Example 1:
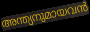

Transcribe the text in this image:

അന്ത്യനുമായവൻ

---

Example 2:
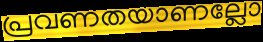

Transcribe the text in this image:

പ്രവണതയാണല്ലോ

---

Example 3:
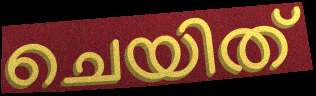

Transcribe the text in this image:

ചെയിത്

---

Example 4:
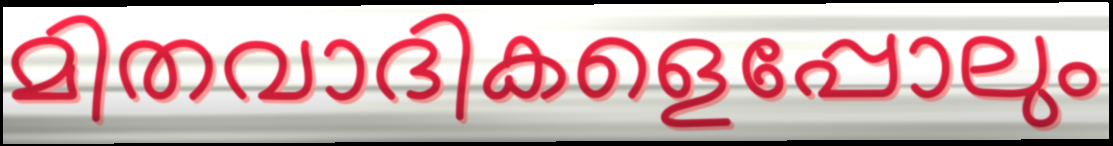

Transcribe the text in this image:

മിതവാദികളെപ്പോലും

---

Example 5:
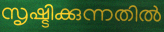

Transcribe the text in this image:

സൃഷ്ടിക്കുന്നതിൽ